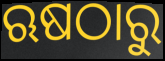
ଋଷଠାରୁ